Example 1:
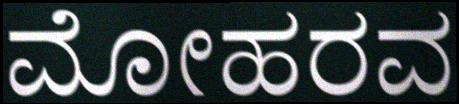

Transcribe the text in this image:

ಮೋಹರವ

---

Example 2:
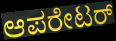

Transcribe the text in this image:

ಆಪರೇಟರ್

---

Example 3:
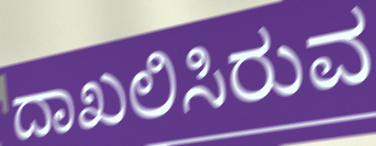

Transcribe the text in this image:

ದಾಖಲಿಸಿರುವ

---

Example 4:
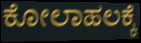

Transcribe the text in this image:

ಕೋಲಾಹಲಕ್ಕೆ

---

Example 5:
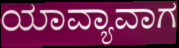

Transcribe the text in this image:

ಯಾವ್ಯಾವಾಗ